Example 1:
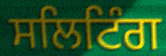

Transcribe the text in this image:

ਸਲਿਟਿੰਗ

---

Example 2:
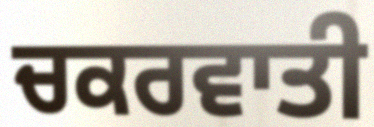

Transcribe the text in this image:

ਚਕਰਵਾਤੀ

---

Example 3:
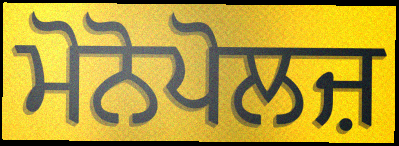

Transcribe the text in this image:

ਮੋਨੋਪੋਲਜ਼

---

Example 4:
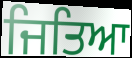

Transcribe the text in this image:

ਜਿਤਿਆ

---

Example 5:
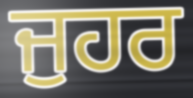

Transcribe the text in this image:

ਜੁਹਰ